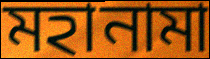
মহানামা